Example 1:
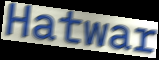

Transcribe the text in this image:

Hatwar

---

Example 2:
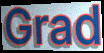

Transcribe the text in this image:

Grad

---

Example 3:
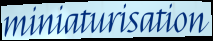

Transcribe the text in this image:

miniaturisation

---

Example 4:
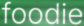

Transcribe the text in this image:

foodie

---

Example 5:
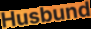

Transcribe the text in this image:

Husbund